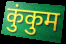
कुंकुम